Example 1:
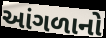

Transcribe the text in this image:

આંગળાનો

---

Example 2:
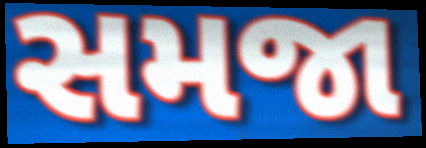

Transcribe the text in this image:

સમજા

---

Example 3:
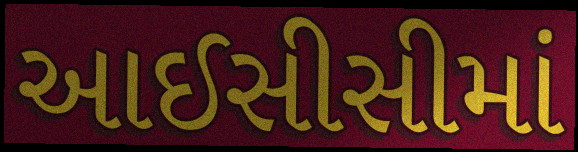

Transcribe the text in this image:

આઈસીસીમાં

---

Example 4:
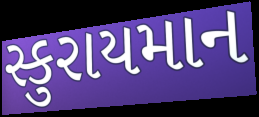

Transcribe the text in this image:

સ્કુરાયમાન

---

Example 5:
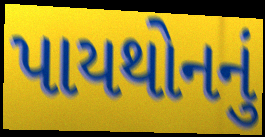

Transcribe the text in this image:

પાયથોનનું